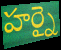
హర్నై